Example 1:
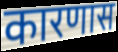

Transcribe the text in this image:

कारणास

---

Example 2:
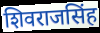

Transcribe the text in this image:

शिवराजसिंह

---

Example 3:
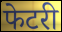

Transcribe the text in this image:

फेटरी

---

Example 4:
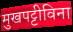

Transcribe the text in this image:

मुखपट्टीविना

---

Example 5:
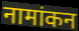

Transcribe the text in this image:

नामांकन